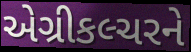
એગ્રીકલ્ચરને